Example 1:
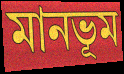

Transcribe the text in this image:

মানভূম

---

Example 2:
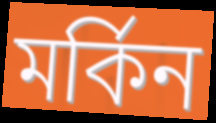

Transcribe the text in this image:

মর্কিন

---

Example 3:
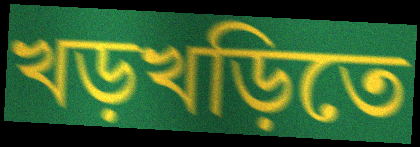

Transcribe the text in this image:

খড়খড়িতে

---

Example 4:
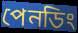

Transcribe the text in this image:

পেনডিং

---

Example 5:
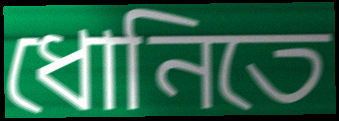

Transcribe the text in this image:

ধোনিতে